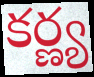
కర్ణ్య